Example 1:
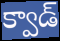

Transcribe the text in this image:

క్వాడ్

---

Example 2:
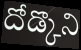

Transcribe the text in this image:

దోడ్కొని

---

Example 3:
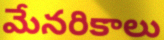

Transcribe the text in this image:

మేనరికాలు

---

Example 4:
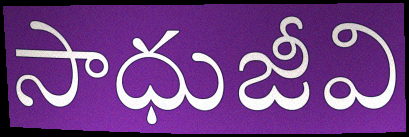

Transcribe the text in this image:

సాధుజీవి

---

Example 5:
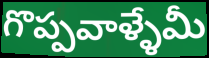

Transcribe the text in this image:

గొప్పవాళ్ళేమీ